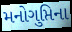
મનોગુપ્તિના